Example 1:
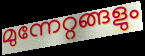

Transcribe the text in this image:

മുന്നേറ്റങ്ങളും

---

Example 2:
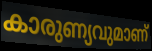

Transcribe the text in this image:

കാരുണ്യവുമാണ്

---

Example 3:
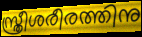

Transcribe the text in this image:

സ്ത്രീശരീരത്തിനു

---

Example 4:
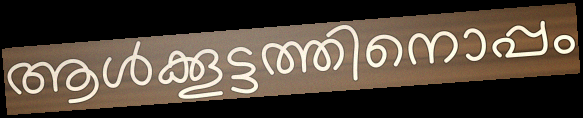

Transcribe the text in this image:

ആൾക്കൂട്ടത്തിനൊപ്പം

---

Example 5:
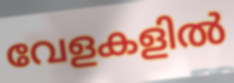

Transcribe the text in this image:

വേളകളിൽ